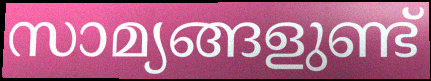
സാമ്യങ്ങളുണ്ട്